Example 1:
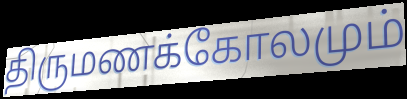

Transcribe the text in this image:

திருமணக்கோலமும்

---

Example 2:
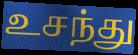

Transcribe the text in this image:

உசந்து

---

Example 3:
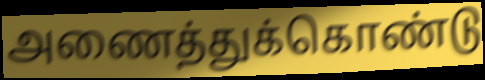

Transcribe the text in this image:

அணைத்துக்கொண்டு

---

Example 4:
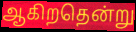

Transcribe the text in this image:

ஆகிறதென்று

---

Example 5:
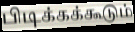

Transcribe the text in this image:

பிடிக்கக்கூடும்